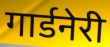
गार्डनेरी